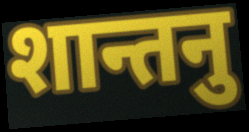
शान्तनु